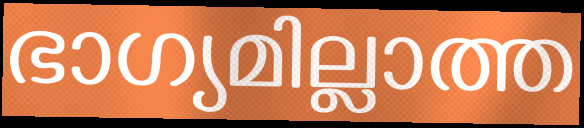
ഭാഗ്യമില്ലാത്ത